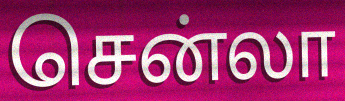
சென்லா